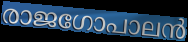
രാജഗോപാലൻ